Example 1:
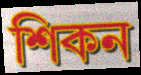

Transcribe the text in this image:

শিকন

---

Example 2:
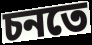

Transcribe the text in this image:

চনতে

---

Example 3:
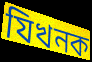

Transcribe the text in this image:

যিখনক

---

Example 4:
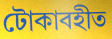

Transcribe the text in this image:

টোকাবহীত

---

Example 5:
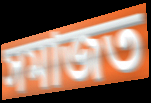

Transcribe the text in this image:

সমাজত